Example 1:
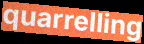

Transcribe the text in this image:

quarrelling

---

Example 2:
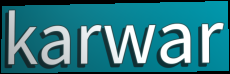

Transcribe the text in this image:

karwar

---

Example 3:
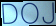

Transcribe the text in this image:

DOJ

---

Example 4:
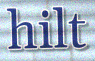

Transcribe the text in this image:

hilt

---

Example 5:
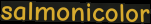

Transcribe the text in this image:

salmonicolor